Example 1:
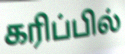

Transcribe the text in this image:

கரிப்பில்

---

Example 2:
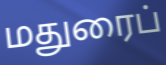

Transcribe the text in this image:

மதுரைப்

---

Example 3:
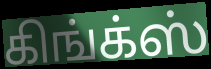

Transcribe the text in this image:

கிங்க்ஸ்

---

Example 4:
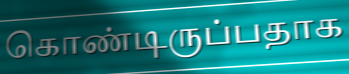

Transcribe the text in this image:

கொண்டிருப்பதாக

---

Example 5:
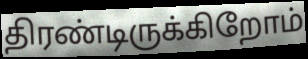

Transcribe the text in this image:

திரண்டிருக்கிறோம்